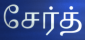
சேர்த்